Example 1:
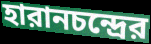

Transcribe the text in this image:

হারানচন্দ্রের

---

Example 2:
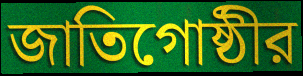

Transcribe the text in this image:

জাতিগোষ্ঠীর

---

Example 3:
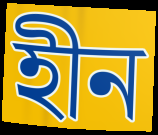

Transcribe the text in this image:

হীন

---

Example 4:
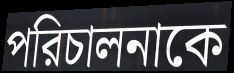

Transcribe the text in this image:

পরিচালনাকে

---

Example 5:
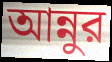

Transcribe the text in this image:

আন্নুর